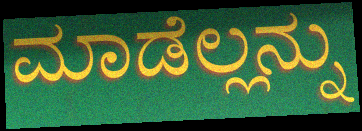
ಮಾಡೆಲ್ಲನ್ನು